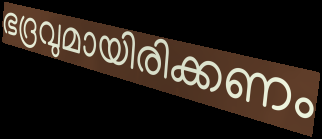
ഭദ്രവുമായിരിക്കണം